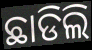
ଛାଡିଲି